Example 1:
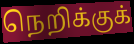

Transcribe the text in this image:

நெறிக்குக்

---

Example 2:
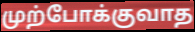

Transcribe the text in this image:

முற்போக்குவாத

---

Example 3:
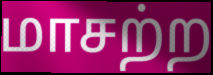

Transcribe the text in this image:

மாசற்ற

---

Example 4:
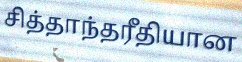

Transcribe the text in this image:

சித்தாந்தரீதியான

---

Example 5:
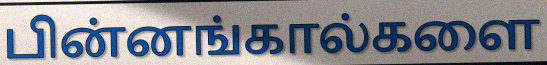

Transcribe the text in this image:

பின்னங்கால்களை